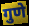
गुणे